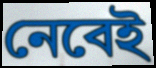
নেবেই